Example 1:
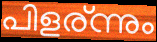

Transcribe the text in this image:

പിളര്ന്നും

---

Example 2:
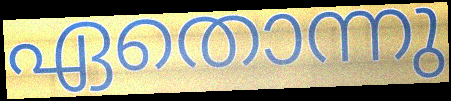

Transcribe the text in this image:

ഏതൊന്നു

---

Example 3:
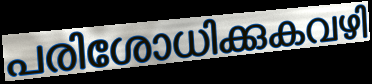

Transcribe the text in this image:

പരിശോധിക്കുകവഴി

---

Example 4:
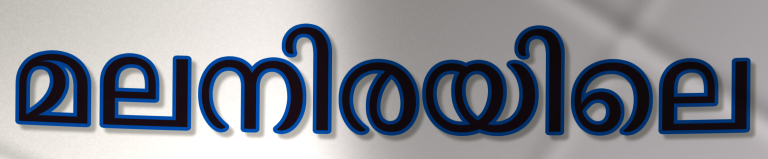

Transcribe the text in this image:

മലനിരയിലെ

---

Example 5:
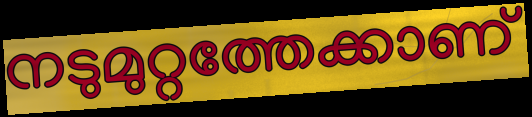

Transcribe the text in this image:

നടുമുറ്റത്തേക്കാണ്